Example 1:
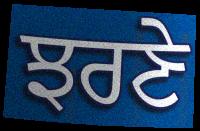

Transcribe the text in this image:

ਝਰਣੇ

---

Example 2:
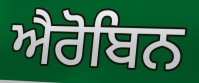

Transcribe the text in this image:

ਐਰੋਬਿਨ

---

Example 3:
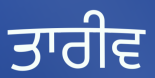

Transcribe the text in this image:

ਤਾਰੀਵ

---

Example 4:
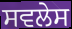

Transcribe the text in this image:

ਸਵਲੇਸ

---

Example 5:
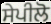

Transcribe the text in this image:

ਸੇਪੀਲੋ